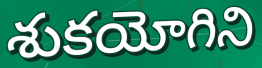
శుకయోగిని